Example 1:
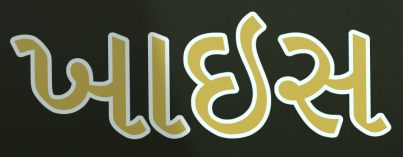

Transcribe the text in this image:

ખાઇસ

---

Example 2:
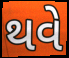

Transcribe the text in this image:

થવે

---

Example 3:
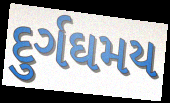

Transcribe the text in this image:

દુર્ગઘમય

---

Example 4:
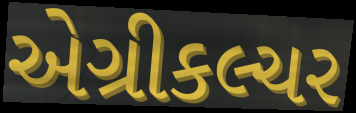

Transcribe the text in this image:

એગ્રીકલ્ચર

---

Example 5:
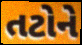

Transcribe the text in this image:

તટોને